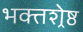
भक्तश्रेष्ठ